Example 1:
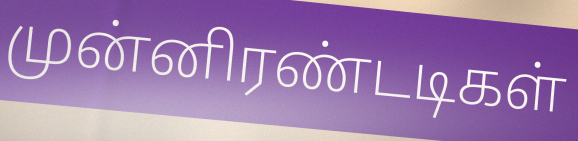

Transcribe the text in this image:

முன்னிரண்டடிகள்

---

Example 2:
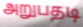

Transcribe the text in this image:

அறுபதடி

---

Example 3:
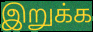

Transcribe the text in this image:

இறுக்க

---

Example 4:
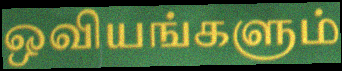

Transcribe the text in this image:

ஒவியங்களும்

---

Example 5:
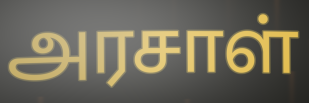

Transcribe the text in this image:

அரசாள்